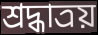
শ্রদ্ধাত্রয়